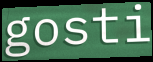
gosti